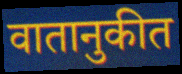
वातानुकीत